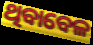
ଥିବାବେଳ